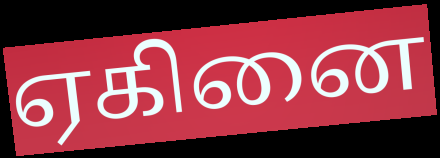
ஏகினை